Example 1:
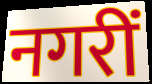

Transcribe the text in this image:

नगरीं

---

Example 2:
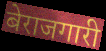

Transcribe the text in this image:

बेराजगारी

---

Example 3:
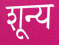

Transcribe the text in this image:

शून्य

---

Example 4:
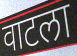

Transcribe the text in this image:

वाटला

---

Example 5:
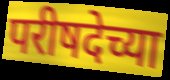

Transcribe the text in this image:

परीषदेच्या